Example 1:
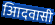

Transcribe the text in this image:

आिदवासी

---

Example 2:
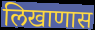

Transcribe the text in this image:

लिखाणास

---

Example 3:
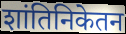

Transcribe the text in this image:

शांतिनिकेतन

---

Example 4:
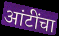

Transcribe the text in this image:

आंटींचा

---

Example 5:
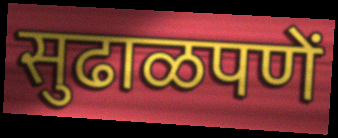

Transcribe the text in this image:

सुढाळपणें